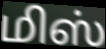
மிஸ்